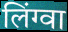
लिंग्वा